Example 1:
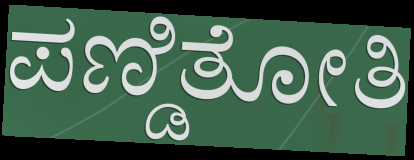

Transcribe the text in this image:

ಪಣ್ಡಿತೋತಿ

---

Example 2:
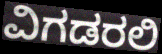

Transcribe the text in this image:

ವಿಗಡರಲಿ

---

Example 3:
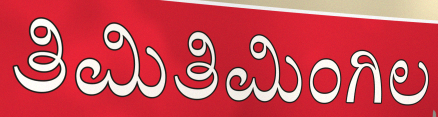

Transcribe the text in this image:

ತಿಮಿತಿಮಿಂಗಿಲ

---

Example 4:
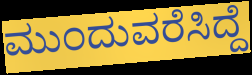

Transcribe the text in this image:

ಮುಂದುವರೆಸಿದ್ದೆ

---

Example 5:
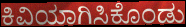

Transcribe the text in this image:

ಕಿವಿಯಾಗಿಸಿಕೊಂಡು